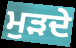
ਮੁਡ਼ਦੇ